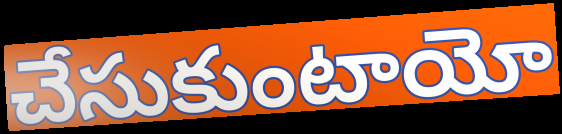
చేసుకుంటాయో